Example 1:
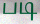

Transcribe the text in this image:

படி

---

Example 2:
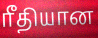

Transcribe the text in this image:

ரீதியான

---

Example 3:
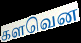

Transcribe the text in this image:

களவென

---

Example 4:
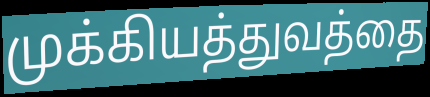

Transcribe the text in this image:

முக்கியத்துவத்தை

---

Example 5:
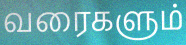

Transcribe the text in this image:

வரைகளும்